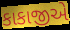
કાકાજીએ